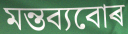
মন্তব্যবোৰ